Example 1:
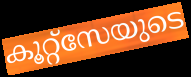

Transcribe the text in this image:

കൂറ്റ്സേയുടെ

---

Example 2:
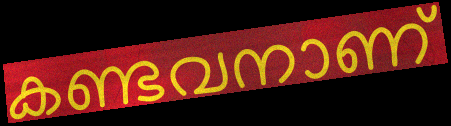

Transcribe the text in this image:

കണ്ടവനാണ്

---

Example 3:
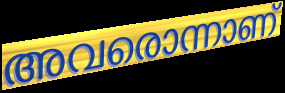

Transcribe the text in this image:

അവരൊന്നാണ്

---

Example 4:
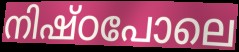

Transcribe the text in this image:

നിഷ്ഠപോലെ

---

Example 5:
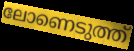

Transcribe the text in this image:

ലോണെടുത്ത്